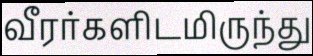
வீரர்களிடமிருந்து